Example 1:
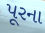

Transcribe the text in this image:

પૂરના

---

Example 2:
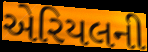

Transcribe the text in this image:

એરિયલની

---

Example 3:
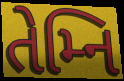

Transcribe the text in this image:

તેમ્નિ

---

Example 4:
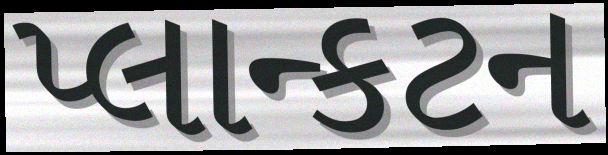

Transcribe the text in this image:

પ્લાન્કટન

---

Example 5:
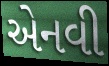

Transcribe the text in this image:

એનવી